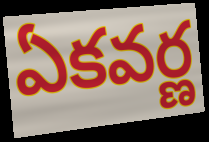
ఏకవర్ణ